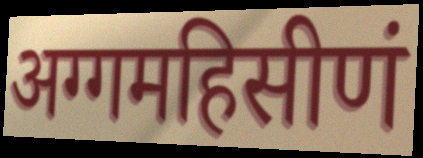
अग्गमहिसीणं